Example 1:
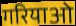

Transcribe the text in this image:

गरियाओ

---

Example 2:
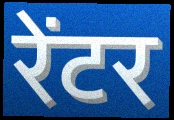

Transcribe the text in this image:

रेंटर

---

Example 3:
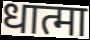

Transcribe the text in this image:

धात्मा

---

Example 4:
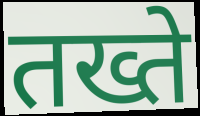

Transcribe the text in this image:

तख्ते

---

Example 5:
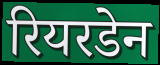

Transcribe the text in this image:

रियरडेन